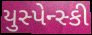
યુસ્પેન્સ્કી